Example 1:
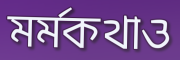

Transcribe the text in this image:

মর্মকথাও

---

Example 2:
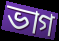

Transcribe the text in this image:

ভাগ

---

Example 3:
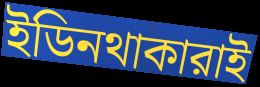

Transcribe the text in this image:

ইডিনথাকারাই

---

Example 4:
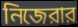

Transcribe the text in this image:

নিজেরার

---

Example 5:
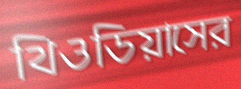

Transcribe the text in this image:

থিওডিয়াসের